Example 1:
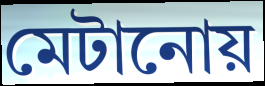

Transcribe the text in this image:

মেটানোয়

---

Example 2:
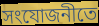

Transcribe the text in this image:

সংযোজনীতে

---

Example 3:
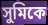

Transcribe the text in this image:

সুমিকে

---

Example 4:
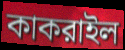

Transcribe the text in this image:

কাকরাইল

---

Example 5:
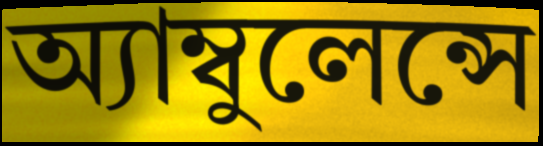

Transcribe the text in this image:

অ্যাম্বুলেন্সে